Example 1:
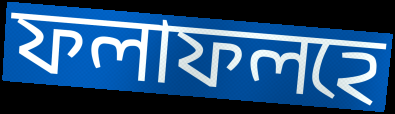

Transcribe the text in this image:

ফলাফলহে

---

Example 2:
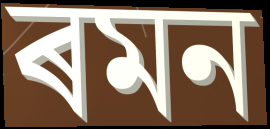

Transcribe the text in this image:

ৰমন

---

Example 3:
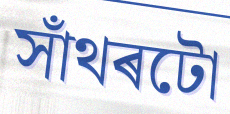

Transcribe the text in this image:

সাঁথৰটো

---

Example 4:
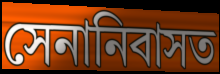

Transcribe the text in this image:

সেনানিবাসত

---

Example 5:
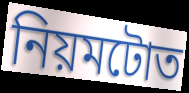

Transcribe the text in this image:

নিয়মটোত